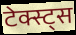
टेक्स्ट्स